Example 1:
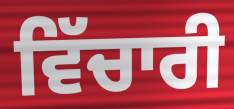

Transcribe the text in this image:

ਵਿੱਚਾਰੀ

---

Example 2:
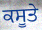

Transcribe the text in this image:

ਕਸੂਤੇ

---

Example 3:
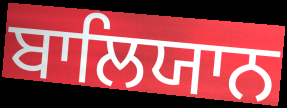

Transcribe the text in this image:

ਬਾਲਿਯਾਨ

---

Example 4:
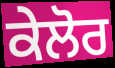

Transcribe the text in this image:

ਕੇਲੋਰ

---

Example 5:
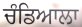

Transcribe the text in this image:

ਚੰਡਿਆਲਾ